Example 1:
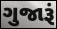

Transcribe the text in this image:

ગુજારૂં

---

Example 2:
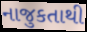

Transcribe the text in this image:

નાજુકતાથી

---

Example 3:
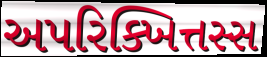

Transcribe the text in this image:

અપરિક્ખિત્તસ્સ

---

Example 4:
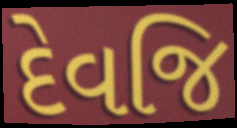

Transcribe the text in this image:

દેવજિ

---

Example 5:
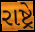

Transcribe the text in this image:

રાષ્ટ્રે